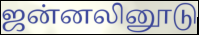
ஜன்னலினூடு